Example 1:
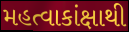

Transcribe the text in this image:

મહત્વાકાંક્ષાથી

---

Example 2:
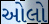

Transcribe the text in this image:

ઓલો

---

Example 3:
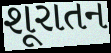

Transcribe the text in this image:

શૂરાતન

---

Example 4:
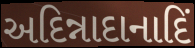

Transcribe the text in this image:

અદિન્નાદાનાદિં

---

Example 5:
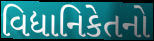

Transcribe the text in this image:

વિદ્યાનિકેતનો